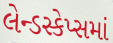
લેન્ડસ્કેપ્સમાં